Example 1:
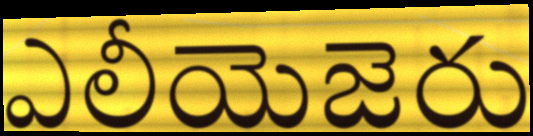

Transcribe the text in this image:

ఎలీయెజెరు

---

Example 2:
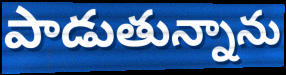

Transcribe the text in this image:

పాడుతున్నాను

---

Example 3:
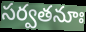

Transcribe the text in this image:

సర్వతనూః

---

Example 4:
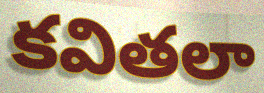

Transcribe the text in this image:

కవితలా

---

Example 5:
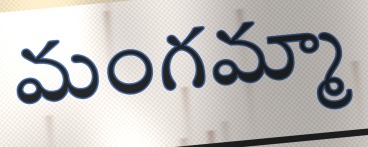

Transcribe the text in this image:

మంగమ్మా